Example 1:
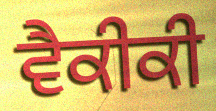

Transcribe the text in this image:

ਵੈਕੀਕੀ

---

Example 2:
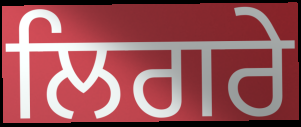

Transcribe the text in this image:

ਲਿਗਰੇ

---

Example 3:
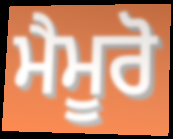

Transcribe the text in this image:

ਮੈਮੂਰੋ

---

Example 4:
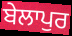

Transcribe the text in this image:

ਬੇਲਾਪੁਰ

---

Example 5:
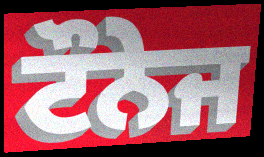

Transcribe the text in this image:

ਟੌਨੇਜ